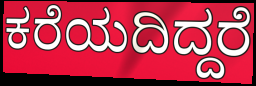
ಕರೆಯದಿದ್ದರೆ